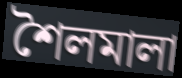
শৈলমালা